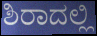
ಶಿರಾದಲ್ಲಿ